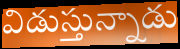
విడుస్తున్నాడు